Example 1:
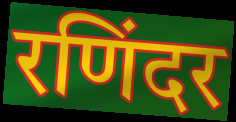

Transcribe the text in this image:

रणिंदर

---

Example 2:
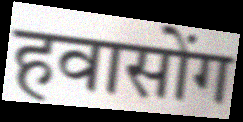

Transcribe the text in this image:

हवासोंग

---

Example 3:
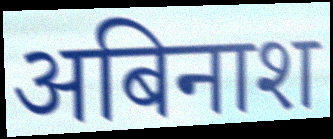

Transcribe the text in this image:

अबिनाश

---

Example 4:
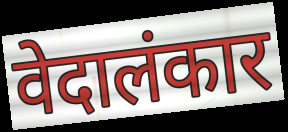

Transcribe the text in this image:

वेदालंकार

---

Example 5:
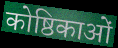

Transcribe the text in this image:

कोष्ठिकाओं